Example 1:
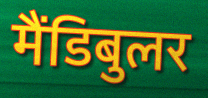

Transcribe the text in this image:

मैंडिबुलर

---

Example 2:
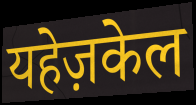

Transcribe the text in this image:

यहेज़केल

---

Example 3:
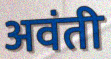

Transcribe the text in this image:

अवंती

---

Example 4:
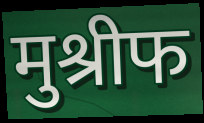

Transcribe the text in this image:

मुश्रीफ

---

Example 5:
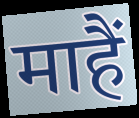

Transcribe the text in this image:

माहैं